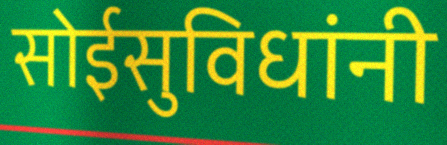
सोईसुविधांनी